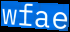
wfae